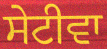
ਸੇਟੀਵਾ